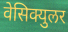
वेसिक्युलर